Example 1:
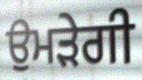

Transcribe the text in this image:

ਉਮੜੇਗੀ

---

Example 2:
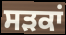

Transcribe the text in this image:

ਸੜਕਾਂ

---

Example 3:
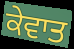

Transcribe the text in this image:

ਕੇਵਾਤ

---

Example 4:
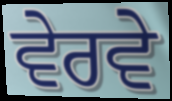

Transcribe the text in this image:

ਵੇਰਵੇ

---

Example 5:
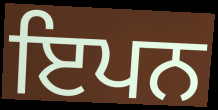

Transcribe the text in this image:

ਇਪਨ